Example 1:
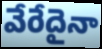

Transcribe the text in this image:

వేరేదైనా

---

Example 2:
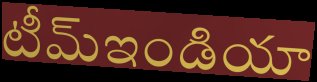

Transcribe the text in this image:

టీమ్ఇండియా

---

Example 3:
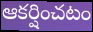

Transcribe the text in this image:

ఆకర్షించటం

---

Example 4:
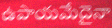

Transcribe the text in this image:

ఉపాయమేదైనా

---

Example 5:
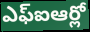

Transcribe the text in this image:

ఎఫ్ఐఆర్లో